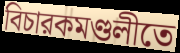
বিচারকমণ্ডলীতে